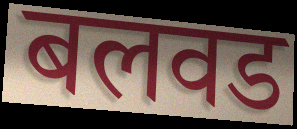
बलवड